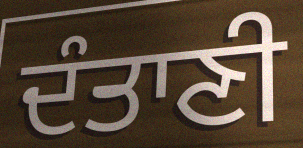
ਦੰਤਾਣੀ